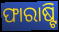
ଫାରାଷ୍ଟି